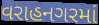
વરાહનગરમાં